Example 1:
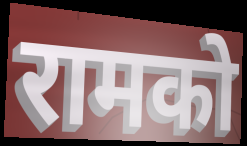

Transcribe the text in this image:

रामको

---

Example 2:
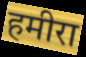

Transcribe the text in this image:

हमीरा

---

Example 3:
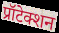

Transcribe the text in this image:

प्रॉटेक्शन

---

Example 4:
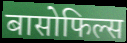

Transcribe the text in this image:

बासोफिल्स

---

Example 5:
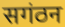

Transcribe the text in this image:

सगंठन